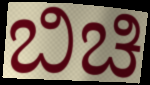
ಬಿಚಿ